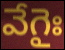
వేగైః